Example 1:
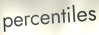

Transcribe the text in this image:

percentiles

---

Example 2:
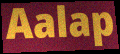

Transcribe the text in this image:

Aalap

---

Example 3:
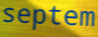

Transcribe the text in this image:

septem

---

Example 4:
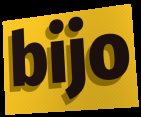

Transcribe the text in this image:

bijo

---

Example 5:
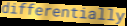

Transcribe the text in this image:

differentially